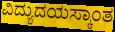
ವಿದ್ಯುದಯಸ್ಕಾಂತ